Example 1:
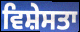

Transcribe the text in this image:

ਵਿਸ਼ੇਸਤਾ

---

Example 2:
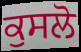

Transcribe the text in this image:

ਕੁਸਲੋ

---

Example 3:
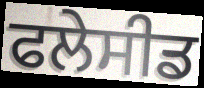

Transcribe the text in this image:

ਫਲੇਸੀਡ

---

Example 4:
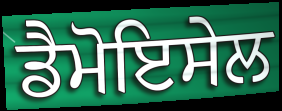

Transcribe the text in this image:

ਡੈਮੋਇਸੇਲ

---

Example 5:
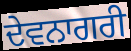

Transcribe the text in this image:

ਦੇਵਨਾਗਰੀ